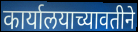
कार्यालयाच्यावतीने